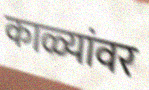
काळ्यांवर